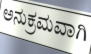
ಅನುಕ್ರಮವಾಗಿ